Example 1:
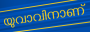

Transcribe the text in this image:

യുവാവിനാണ്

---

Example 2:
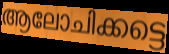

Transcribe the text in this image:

ആലോചിക്കട്ടെ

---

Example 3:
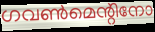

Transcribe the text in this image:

ഗവൺമെന്റിനോ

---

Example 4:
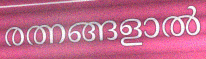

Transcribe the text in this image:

രത്നങ്ങളാൽ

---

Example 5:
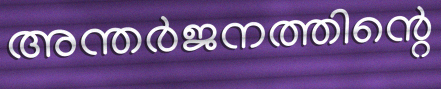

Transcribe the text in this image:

അന്തർജനത്തിന്റെ